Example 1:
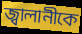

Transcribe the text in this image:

জ্বালানীকে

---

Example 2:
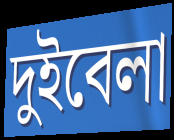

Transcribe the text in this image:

দুইবেলা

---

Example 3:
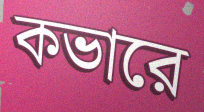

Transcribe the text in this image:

কভারে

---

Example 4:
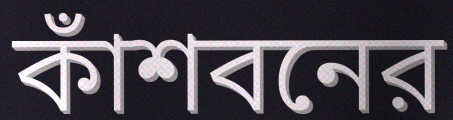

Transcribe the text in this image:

কাঁশবনের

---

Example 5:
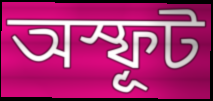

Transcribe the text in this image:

অস্ফূট